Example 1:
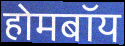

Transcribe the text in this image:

होमबॉय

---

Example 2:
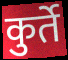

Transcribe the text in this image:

कुर्ते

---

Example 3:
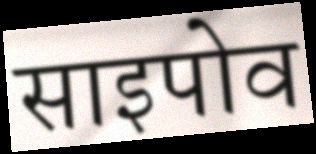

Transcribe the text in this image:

साइपोव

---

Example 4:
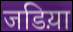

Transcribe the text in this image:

जडिय़ा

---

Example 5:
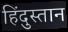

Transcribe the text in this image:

हिंदुस्तान